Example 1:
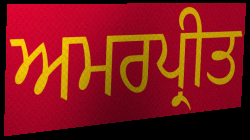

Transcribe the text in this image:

ਅਮਰਪ੍ਰੀਤ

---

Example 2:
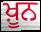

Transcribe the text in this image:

ਖ਼ੂਨ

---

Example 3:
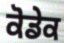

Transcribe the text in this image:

ਕੋਡੇਕ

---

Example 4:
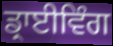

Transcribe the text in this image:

ਡ੍ਰਾਈਵਿੰਗ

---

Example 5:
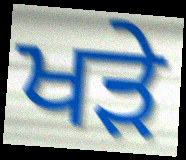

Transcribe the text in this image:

ਖੜੇ